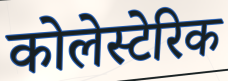
कोलेस्टेरिक